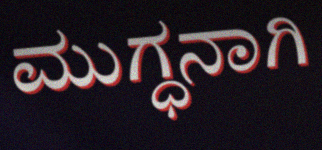
ಮುಗ್ಧನಾಗಿ